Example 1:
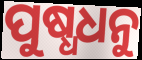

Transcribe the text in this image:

ପୁଷ୍ଧଧନୁ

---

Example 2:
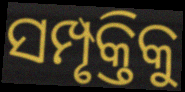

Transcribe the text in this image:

ସମ୍ପୃକ୍ତିକୁ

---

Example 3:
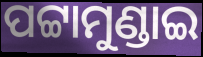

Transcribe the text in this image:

ପଟ୍ଟାମୁଣ୍ଡାଇ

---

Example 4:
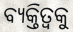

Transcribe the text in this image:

ବ୍ୟକ୍ତିତ୍ୱକୁ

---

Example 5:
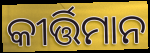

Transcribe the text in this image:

କୀର୍ତ୍ତିମାନ